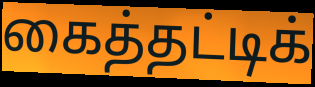
கைத்தட்டிக்